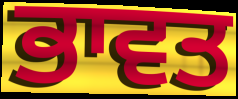
ਭਾਵਤ